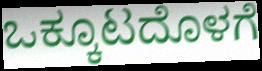
ಒಕ್ಕೂಟದೊಳಗೆ